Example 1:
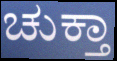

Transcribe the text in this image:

ಚುಕ್ತಾ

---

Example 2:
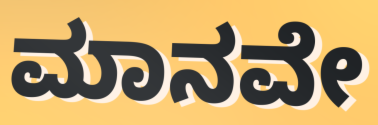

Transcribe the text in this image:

ಮಾನವೇ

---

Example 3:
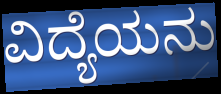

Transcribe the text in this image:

ವಿದ್ಯೆಯನು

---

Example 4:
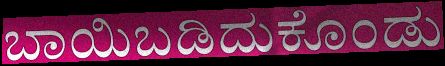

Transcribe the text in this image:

ಬಾಯಿಬಡಿದುಕೊಂಡು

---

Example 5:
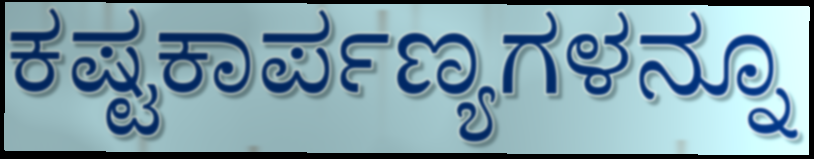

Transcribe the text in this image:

ಕಷ್ಟಕಾರ್ಪಣ್ಯಗಳನ್ನೂ